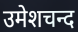
उमेशचन्द